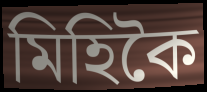
মিহিকৈ